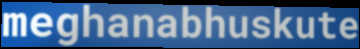
meghanabhuskute